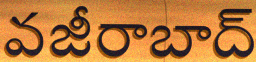
వజీరాబాద్